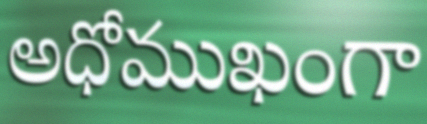
అధోముఖంగా